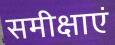
समीक्षाएं